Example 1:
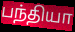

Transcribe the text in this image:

பந்தியா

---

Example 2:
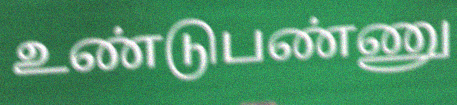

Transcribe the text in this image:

உண்டுபண்ணு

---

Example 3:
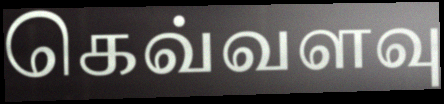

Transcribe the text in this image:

கெவ்வளவு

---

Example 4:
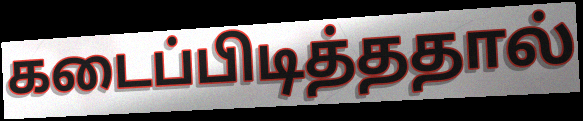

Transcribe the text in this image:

கடைப்பிடித்ததால்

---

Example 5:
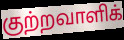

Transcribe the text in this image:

குற்றவாளிக்